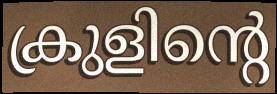
ക്രുളിന്റെ